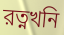
রত্নখনি